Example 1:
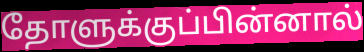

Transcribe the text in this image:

தோளுக்குப்பின்னால்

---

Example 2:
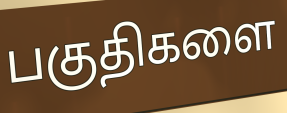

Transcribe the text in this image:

பகுதிகளை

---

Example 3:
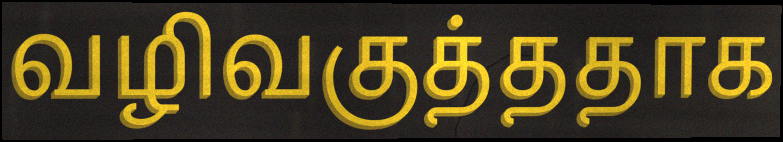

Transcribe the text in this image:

வழிவகுத்ததாக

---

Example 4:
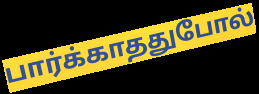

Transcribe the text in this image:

பார்க்காததுபோல்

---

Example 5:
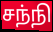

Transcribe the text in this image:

சந்நி